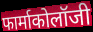
फार्माकोलॉजी